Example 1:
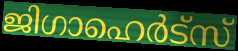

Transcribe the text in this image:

ജിഗാഹെർട്സ്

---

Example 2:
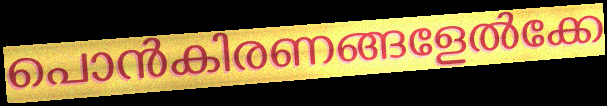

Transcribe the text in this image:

പൊൻകിരണങ്ങളേൽക്കേ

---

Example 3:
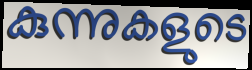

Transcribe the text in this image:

കുന്നുകളുടെ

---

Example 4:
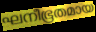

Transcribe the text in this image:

ഘനീഭൂതമായ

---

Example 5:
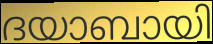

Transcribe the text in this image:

ദയാബായി